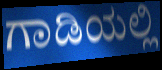
ಗಾಡಿಯಲ್ಲಿ